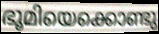
ഭൂമിയെക്കൊണ്ടു